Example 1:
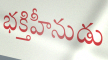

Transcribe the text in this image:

భక్తిహీనుడు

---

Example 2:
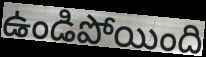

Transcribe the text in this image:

ఉండిపోయింది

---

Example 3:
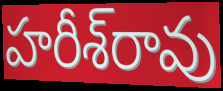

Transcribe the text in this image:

హరీశ్‌రావు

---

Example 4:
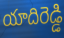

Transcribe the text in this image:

యాదిరెడ్డి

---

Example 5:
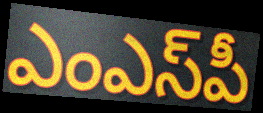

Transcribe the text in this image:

ఎంఎస్‌పీ